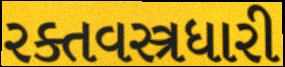
રક્તવસ્ત્રધારી